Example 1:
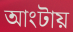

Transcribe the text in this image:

আংটায়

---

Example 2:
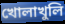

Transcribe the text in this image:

খোলাখুলি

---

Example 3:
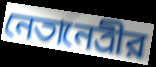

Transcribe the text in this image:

নেতানেত্রীর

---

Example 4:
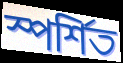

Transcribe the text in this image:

স্পর্শিত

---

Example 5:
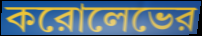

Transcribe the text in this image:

করোলেভের